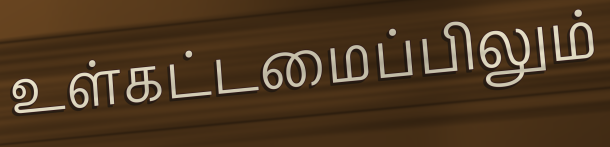
உள்கட்டமைப்பிலும்